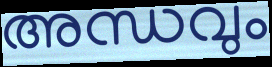
അന്ധവും